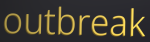
outbreak